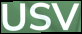
USV